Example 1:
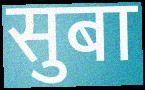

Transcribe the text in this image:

सुबा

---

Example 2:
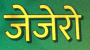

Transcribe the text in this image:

जेजेरो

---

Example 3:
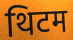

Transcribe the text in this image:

थिटम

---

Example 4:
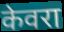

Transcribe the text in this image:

केवरा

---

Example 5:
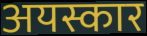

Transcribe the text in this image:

अयस्कार